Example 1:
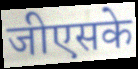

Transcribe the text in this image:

जीएसके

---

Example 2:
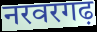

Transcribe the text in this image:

नरवरगढ़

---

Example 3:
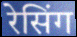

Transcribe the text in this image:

रेसिंग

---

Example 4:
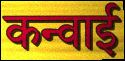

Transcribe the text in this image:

कन्वाई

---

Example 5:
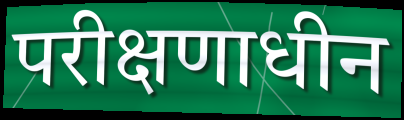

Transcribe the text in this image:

परीक्षणाधीन